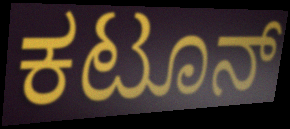
ಕಟೂನ್